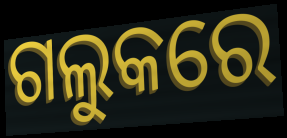
ଗଲୁକରେ